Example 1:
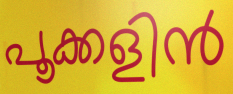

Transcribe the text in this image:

പൂക്കളിൻ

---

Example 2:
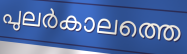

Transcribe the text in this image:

പുലർകാലത്തെ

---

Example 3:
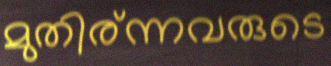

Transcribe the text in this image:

മുതിര്ന്നവരുടെ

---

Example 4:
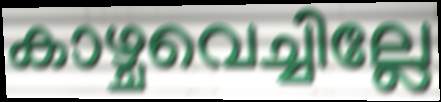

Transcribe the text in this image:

കാഴ്ചവെച്ചില്ലേ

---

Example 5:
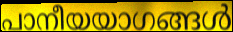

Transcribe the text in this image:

പാനീയയാഗങ്ങൾ